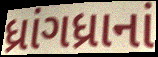
ધ્રાંગધ્રાનાં